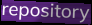
repository